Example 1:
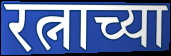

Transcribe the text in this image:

रत्नाच्या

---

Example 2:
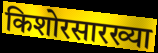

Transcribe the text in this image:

किशोरसारख्या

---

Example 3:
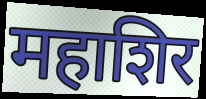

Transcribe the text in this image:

महाशिर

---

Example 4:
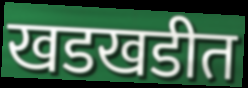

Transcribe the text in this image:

खडखडीत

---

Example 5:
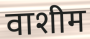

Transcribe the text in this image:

वाशीम